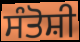
ਸੰਤੋਸ਼ੀ